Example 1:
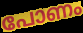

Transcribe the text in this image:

പോണം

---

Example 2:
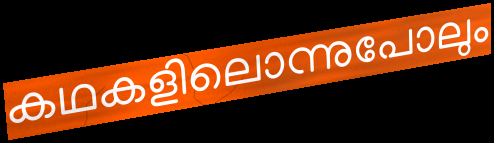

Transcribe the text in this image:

കഥകളിലൊന്നുപോലും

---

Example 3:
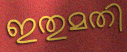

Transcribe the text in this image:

ഇതുമതി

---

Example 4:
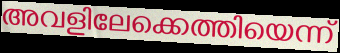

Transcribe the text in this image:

അവളിലേക്കെത്തിയെന്ന്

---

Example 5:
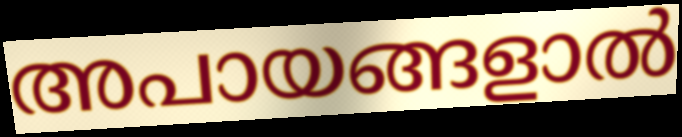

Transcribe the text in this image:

അപായങ്ങളാൽ